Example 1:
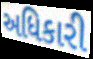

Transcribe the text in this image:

અધિકારી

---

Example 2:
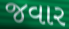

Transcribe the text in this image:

જવાર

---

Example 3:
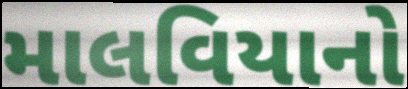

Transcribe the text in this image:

માલવિયાનો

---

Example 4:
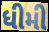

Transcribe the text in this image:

ધીમી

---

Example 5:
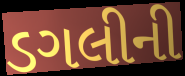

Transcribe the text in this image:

ડગલીની